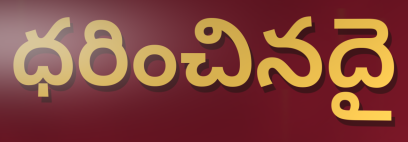
ధరించినదై